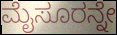
ಮೈಸೂರನ್ನೇ